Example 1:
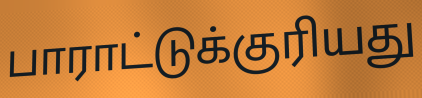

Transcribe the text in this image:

பாராட்டுக்குரியது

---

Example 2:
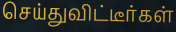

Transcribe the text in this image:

செய்துவிட்டீர்கள்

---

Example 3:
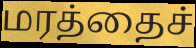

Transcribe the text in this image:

மரத்தைச்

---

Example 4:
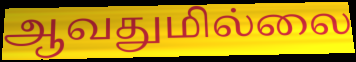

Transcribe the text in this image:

ஆவதுமில்லை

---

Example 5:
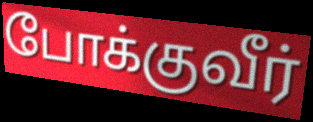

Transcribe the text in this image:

போக்குவீர்